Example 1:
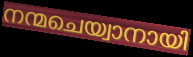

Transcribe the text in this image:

നന്മചെയ്വാനായി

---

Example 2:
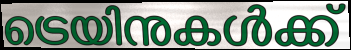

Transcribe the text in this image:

ട്രെയിനുകൾക്ക്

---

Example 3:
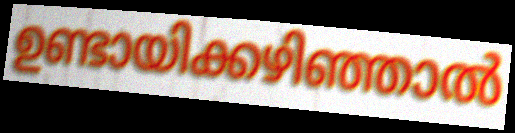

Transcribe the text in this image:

ഉണ്ടായിക്കഴിഞ്ഞാൽ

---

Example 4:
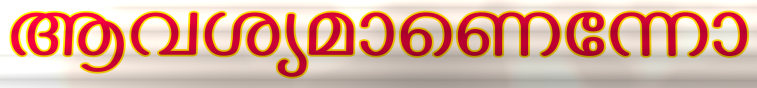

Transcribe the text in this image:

ആവശ്യമാണെന്നോ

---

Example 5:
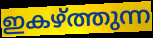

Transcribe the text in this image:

ഇകഴ്ത്തുന്ന